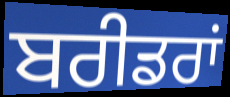
ਬਰੀਡਰਾਂ